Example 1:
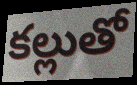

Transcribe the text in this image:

కల్లుతో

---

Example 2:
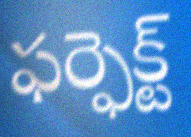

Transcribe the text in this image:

ఫర్ఫెక్ట్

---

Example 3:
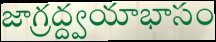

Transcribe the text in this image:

జాగ్రద్ద్వయాభాసం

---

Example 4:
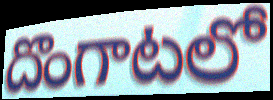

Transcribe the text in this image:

దొంగాటలో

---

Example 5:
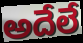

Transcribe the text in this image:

అదేలే